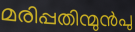
മരിപ്പതിന്മുൻപു